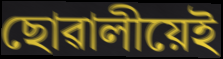
ছোৱালীয়েই